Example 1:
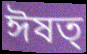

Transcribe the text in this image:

ঈষত্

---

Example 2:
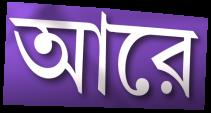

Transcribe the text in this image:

আরে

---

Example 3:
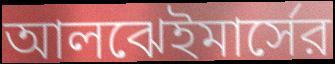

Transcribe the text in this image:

আলঝেইমার্সের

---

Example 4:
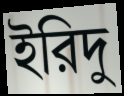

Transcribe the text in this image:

ইরিদু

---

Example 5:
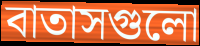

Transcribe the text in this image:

বাতাসগুলো